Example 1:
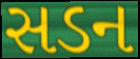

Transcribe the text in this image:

સડન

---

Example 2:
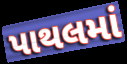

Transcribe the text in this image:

પાથલમાં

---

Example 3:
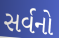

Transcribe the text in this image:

સર્વનો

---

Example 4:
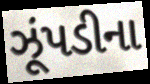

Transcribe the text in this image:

ઝૂંપડીના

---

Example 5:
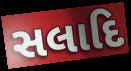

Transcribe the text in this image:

સલાદિ